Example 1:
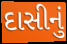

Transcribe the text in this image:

દાસીનું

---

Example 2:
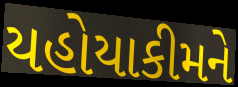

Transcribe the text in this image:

યહોયાકીમને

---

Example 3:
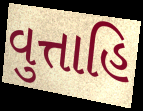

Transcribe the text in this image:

વુત્તાહિ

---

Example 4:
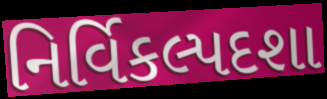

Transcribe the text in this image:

નિર્વિકલ્પદશા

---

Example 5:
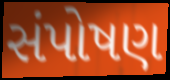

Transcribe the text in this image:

સંપોષણ